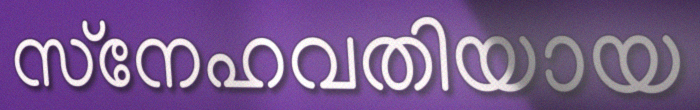
സ്‌നേഹവതിയായ